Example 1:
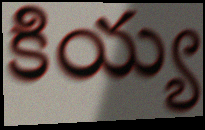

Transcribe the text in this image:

కియ్య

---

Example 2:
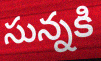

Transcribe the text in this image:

సున్నకి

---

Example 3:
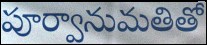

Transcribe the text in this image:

పూర్వానుమతితో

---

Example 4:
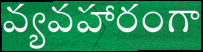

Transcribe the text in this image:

వ్యవహారంగా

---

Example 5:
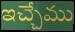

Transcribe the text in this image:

ఇచ్చేము